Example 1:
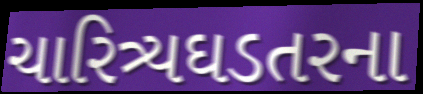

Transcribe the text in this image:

ચારિત્ર્યઘડતરના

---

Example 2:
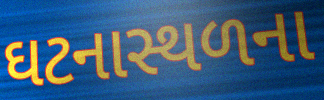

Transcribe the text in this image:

ઘટનાસ્થળના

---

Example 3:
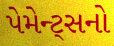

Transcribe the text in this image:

પેમેન્ટ્સનો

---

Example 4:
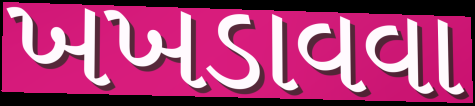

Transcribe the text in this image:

ખખડાવવા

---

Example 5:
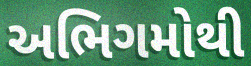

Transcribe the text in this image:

અભિગમોથી